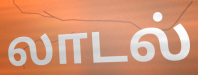
லாடல்